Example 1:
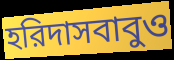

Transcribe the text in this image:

হরিদাসবাবুও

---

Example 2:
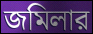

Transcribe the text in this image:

জমিলার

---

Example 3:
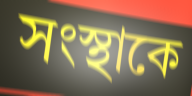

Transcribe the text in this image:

সংস্থাকে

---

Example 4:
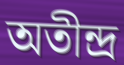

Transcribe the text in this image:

অতীন্দ্র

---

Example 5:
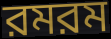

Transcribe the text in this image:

রমরম